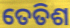
ତେତିଶ